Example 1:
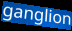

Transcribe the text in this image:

ganglion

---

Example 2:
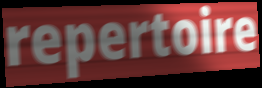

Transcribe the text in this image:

repertoire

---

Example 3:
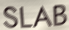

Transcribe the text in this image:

SLAB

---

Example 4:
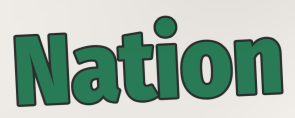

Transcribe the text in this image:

Nation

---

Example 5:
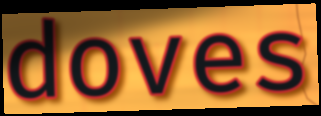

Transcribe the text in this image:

doves